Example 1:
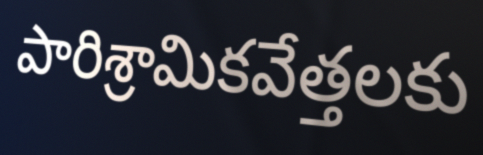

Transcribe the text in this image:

పారిశ్రామికవేత్తలకు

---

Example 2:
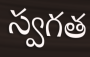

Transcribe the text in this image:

స్వగత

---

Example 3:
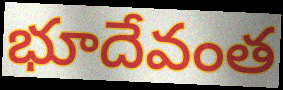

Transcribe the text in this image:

భూదేవంత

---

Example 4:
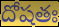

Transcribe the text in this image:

దోషతః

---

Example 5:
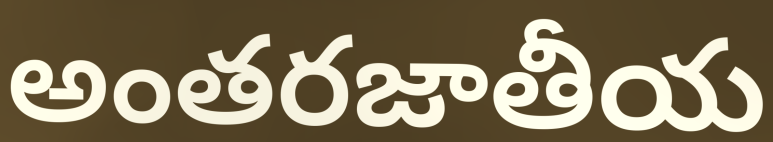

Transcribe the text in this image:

అంతరజాతీయ